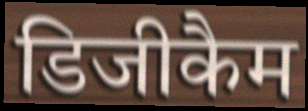
डिजीकैम